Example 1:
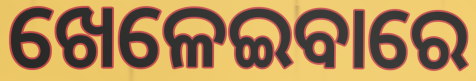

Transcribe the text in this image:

ଖେଳେଇବାରେ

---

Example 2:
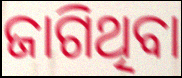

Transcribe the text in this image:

ଜାଗିଥିବା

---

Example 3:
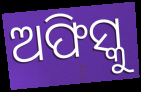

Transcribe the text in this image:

ଅଫିସ୍କୁ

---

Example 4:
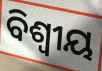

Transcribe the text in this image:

ବିଶ୍ଵୀୟ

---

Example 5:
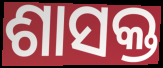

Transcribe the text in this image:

ଶାସକ୍ତ